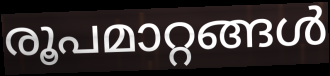
രൂപമാറ്റങ്ങൾ